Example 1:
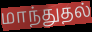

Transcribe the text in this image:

மாந்துதல்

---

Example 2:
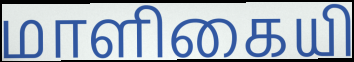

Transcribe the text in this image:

மாளிகையி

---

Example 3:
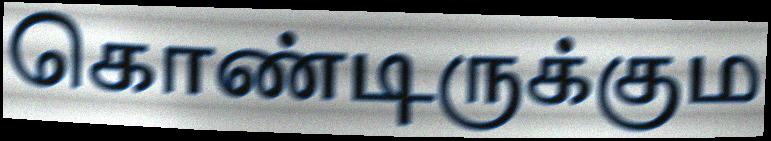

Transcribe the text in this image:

கொண்டிருக்கும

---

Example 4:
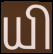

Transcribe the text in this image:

யி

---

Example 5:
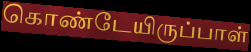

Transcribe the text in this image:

கொண்டேயிருப்பாள்